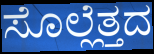
ಸೊಲ್ಲೆತ್ತದ